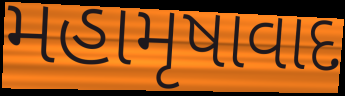
મહામૃષાવાદ